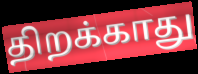
திறக்காது